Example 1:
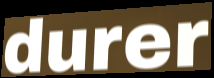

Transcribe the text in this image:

durer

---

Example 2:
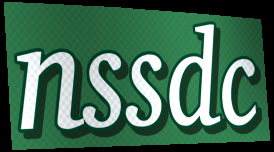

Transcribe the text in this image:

nssdc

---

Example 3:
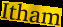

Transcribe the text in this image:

Itham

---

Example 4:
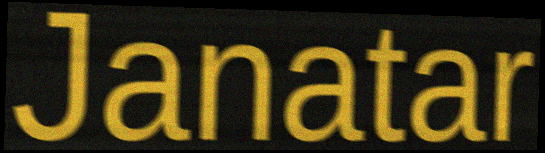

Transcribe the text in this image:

Janatar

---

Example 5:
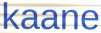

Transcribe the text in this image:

kaane